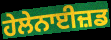
ਹੇਲੇਨਾਈਜ਼ਡ